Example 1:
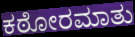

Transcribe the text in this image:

ಕಠೋರಮಾತು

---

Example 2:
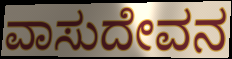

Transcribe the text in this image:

ವಾಸುದೇವನ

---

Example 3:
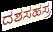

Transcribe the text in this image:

ದಶಸಹಸ್ರ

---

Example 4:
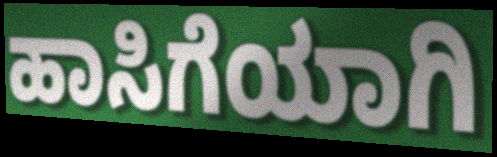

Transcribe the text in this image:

ಹಾಸಿಗೆಯಾಗಿ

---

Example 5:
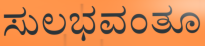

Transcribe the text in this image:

ಸುಲಭವಂತೂ